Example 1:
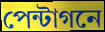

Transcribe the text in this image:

পেন্টাগনে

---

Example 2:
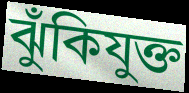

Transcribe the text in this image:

ঝুঁকিযুক্ত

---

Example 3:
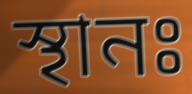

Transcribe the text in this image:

স্থানঃ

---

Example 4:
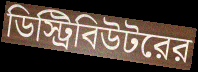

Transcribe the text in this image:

ডিস্ট্রিবিউটরের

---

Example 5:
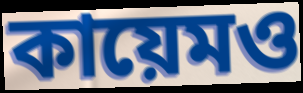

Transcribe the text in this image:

কায়েমও